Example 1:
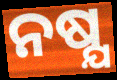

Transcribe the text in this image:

ନଷ୍ଯ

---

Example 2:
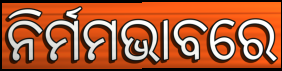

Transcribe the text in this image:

ନିର୍ମମଭାବରେ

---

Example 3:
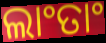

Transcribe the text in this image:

ଲାଂତାଂ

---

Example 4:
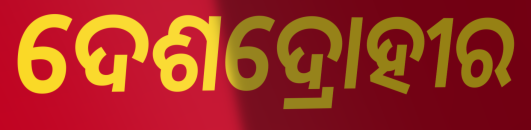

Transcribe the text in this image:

ଦେଶଦ୍ରୋହୀର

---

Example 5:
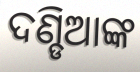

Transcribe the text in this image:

ଦଣ୍ଡିଆଙ୍କ